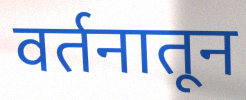
वर्तनातून